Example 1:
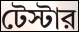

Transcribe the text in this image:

টেস্টার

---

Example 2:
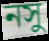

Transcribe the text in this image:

নসু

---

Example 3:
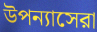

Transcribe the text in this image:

উপন্যাসেরা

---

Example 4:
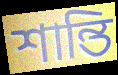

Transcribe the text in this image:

শান্তি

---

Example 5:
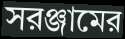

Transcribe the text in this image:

সরঞ্জামের